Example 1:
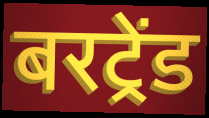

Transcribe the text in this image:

बरट्रेंड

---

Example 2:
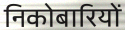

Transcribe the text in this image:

निकोबारियों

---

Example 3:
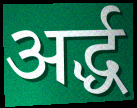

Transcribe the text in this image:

अर्द्ध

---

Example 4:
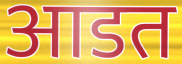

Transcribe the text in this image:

आडत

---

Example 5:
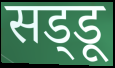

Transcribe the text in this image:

सड्‌डू